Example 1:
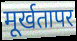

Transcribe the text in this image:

मूर्खतापर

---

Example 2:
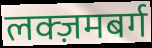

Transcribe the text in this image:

लक्ज़मबर्ग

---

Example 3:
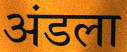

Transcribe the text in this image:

अंडला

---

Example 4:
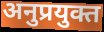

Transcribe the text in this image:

अनुप्रयुक्त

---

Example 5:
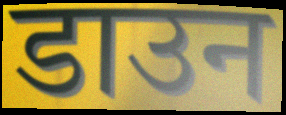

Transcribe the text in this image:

डाउन